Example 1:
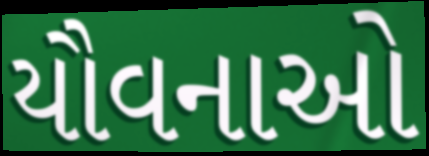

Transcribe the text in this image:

યૌવનાઓ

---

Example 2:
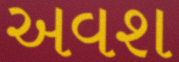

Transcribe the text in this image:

અવશ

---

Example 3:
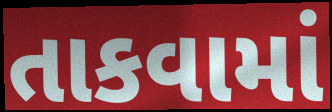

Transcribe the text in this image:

તાકવામાં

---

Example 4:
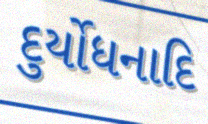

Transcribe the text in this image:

દુર્યોધનાદિ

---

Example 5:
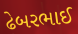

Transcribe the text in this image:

ઢેબરભાઈ